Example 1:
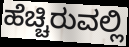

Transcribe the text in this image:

ಹೆಚ್ಚಿರುವಲ್ಲಿ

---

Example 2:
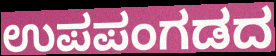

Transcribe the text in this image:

ಉಪಪಂಗಡದ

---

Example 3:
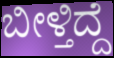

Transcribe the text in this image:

ಬೀಳ್ತಿದ್ದೆ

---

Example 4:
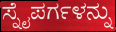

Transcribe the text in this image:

ಸ್ನೈಪರ್ಗಳನ್ನು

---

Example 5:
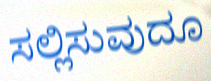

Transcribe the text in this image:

ಸಲ್ಲಿಸುವುದೂ